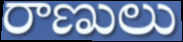
రాణులు